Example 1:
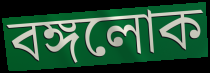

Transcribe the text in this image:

বঙ্গলোক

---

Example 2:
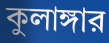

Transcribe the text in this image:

কুলাঙ্গার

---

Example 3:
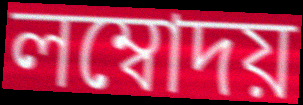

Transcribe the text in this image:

লম্বোদয়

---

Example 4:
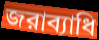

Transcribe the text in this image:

জরাব্যাধি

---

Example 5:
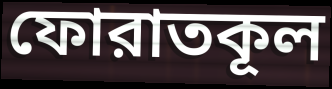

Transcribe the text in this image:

ফোরাতকূল